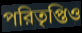
পরিতৃপ্তিও